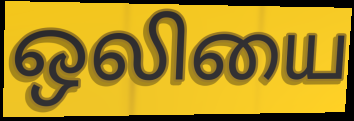
ஒலியை